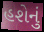
હશેનું